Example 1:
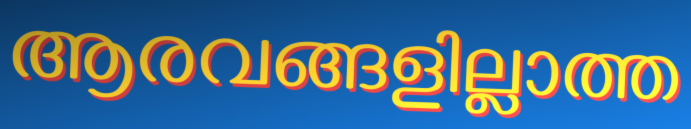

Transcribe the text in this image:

ആരവങ്ങളില്ലാത്ത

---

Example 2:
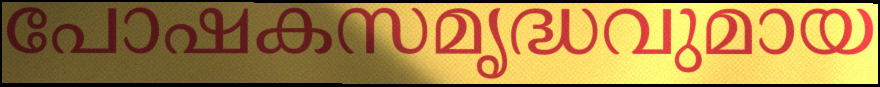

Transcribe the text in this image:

പോഷകസമൃദ്ധവുമായ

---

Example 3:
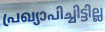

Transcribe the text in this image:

പ്രഖ്യാപിച്ചിട്ടില്ല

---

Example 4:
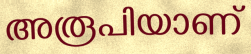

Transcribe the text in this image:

അരൂപിയാണ്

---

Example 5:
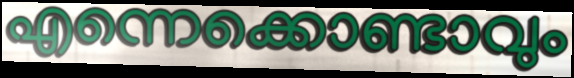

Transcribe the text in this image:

എന്നെക്കൊണ്ടാവും